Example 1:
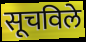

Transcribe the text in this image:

सूचविले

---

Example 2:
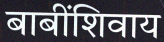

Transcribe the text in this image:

बाबींशिवाय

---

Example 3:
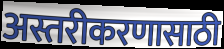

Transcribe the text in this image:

अस्तरीकरणासाठी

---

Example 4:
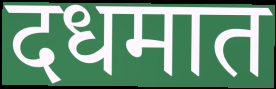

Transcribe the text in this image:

दधमात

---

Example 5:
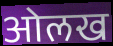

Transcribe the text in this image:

ओलख